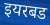
इयरबड